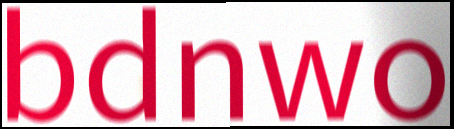
bdnwo